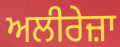
ਅਲੀਰੇਜ਼ਾ